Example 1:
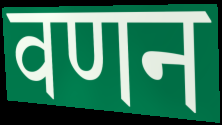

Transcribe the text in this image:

वणन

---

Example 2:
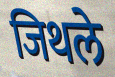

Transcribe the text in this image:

जिथले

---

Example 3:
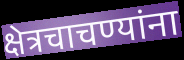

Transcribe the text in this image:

क्षेत्रचाचण्यांना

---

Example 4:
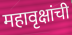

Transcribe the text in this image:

महावृक्षांची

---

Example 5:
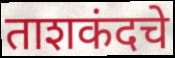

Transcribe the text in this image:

ताशकंदचे